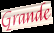
Grande